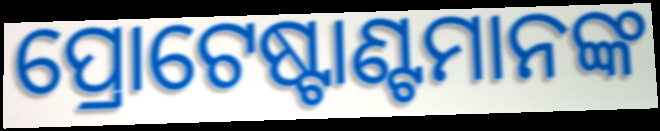
ପ୍ରୋଟେଷ୍ଟାଣ୍ଟମାନଙ୍କ